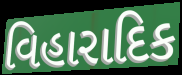
વિહારાદિક